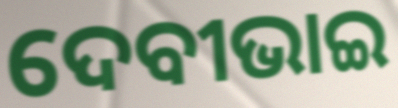
ଦେବୀଭାଇ